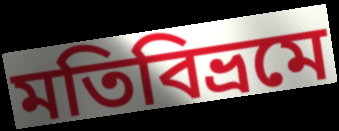
মতিবিভ্রমে